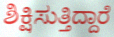
ಶಿಕ್ಷಿಸುತ್ತಿದ್ದಾರೆ